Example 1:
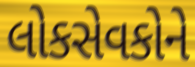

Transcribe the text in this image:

લોકસેવકોને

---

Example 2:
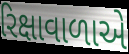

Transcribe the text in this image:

રિક્ષાવાળાએ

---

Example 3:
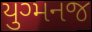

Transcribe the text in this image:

યુગ્મનજ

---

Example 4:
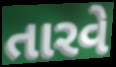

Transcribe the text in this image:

તારવે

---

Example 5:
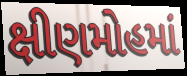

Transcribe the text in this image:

ક્ષીણમોહમાં